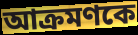
আক্রমণকে